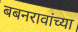
बबनरावांच्या